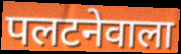
पलटनेवाला